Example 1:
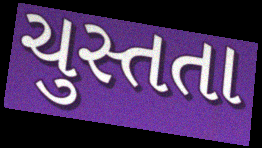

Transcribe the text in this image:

ચુસ્તતા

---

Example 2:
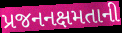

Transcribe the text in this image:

પ્રજનનક્ષમતાની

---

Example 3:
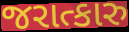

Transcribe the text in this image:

જરાત્કારુ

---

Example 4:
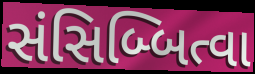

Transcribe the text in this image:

સંસિબ્બિત્વા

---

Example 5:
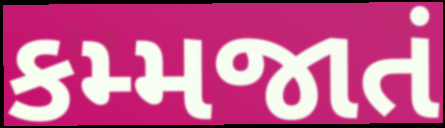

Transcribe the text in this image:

કમ્મજાતં